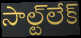
సాల్ట్‌లేక్